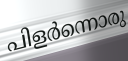
പിളർന്നൊരു